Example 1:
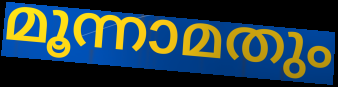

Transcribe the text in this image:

മൂന്നാമതും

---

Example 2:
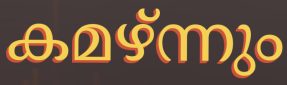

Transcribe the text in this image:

കമഴ്ന്നും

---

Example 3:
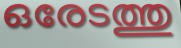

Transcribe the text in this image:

ഒരേടത്തു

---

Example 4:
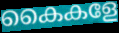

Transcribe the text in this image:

കൈകളേ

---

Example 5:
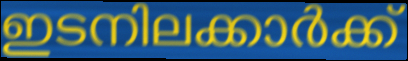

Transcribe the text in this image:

ഇടനിലക്കാർക്ക്